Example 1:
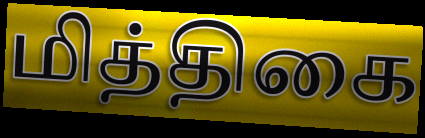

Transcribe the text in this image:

மித்திகை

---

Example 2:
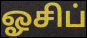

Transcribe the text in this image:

ஓசிப்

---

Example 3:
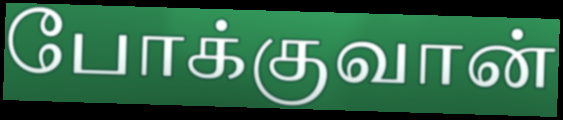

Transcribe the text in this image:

போக்குவான்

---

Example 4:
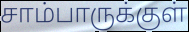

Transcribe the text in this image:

சாம்பாருக்குள்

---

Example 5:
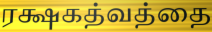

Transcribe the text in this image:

ரக்ஷகத்வத்தை